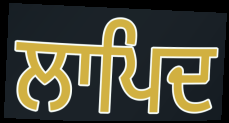
ਲਾਪਿਦ